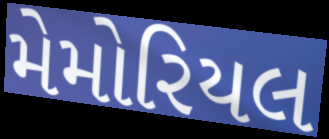
મેમોરિયલ